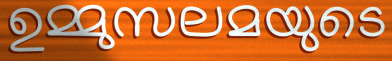
ഉമ്മുസലമയുടെ